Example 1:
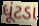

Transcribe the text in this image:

ધૂંટડા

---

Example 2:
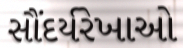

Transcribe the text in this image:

સૌંદર્યરેખાઓ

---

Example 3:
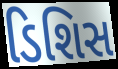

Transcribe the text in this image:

ડિશિસ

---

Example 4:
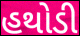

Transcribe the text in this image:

હથોડી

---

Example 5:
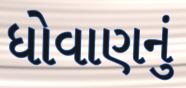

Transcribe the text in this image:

ધોવાણનું